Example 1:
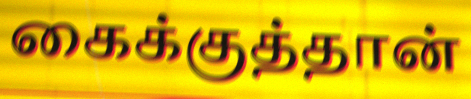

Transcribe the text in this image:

கைக்குத்தான்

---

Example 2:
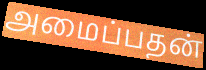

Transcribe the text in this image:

அமைப்பதன்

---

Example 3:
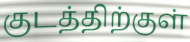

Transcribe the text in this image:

குடத்திற்குள்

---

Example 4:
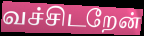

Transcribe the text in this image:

வச்சிடறேன்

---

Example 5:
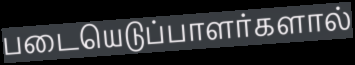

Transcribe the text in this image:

படையெடுப்பாளர்களால்